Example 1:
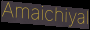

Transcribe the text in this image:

Amaichiyal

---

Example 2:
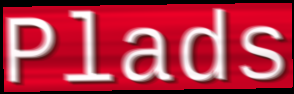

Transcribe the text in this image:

Plads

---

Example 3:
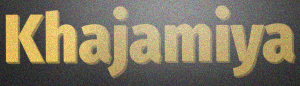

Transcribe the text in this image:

Khajamiya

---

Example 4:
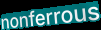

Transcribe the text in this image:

nonferrous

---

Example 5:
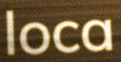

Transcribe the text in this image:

loca